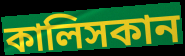
কালিসকান